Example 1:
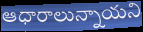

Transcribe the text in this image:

ఆధారాలున్నాయని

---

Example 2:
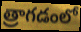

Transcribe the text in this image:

త్రాగడంలో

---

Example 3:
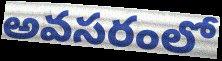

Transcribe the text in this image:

అవసరంలో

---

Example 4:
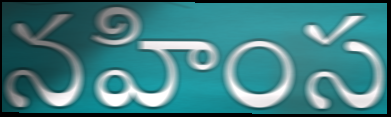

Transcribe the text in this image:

నహింస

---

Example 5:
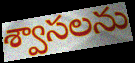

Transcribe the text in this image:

శ్వాసలను